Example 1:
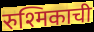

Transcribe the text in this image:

रुश्मिकाची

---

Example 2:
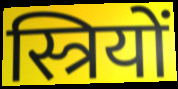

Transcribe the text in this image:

स्त्रियों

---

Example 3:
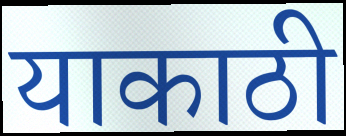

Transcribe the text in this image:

याकाठी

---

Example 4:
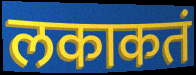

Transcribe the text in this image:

लकाकतं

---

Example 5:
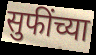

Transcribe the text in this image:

सुफींच्या